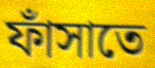
ফাঁসাতে